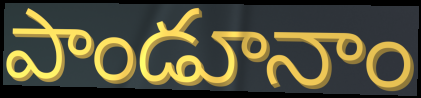
పాండూనాం